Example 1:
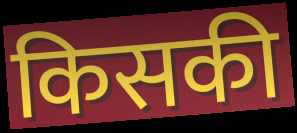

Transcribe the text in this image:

किसकी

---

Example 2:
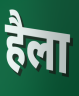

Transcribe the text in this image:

हैला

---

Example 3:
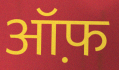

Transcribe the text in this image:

ऑ़फ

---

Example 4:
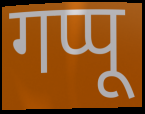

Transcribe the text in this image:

गप्पू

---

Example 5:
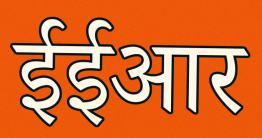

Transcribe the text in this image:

ईईआर